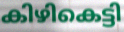
കിഴികെട്ടി